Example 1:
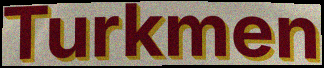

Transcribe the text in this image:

Turkmen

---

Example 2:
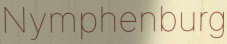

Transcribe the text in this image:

Nymphenburg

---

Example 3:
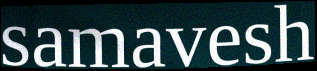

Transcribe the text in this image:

samavesh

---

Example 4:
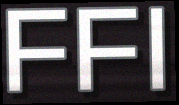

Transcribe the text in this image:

FFI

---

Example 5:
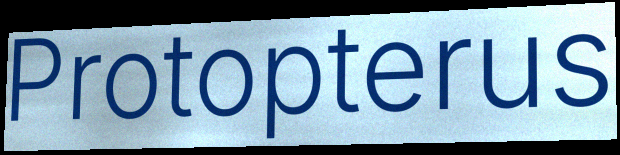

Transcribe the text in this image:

Protopterus